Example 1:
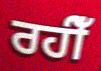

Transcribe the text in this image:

ਰਹੀਁ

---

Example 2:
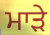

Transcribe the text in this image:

ਮਾੜੇ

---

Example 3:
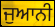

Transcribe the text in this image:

ਜੁਆਨੀ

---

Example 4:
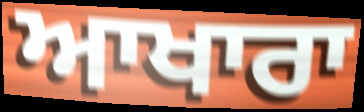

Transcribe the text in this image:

ਆਖਾਰਾ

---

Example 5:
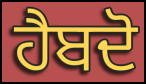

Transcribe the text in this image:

ਹੈਬਦੋ